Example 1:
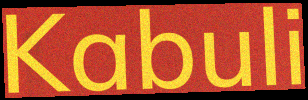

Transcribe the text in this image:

Kabuli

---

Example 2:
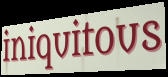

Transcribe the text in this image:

iniquitous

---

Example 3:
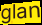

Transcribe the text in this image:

glan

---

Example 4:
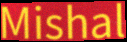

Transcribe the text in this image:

Mishal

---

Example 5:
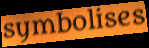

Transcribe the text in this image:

symbolises